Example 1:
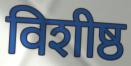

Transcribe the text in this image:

विशीष्ठ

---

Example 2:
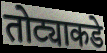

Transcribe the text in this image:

तोट्याकडे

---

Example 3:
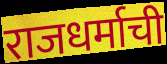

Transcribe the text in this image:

राजधर्माची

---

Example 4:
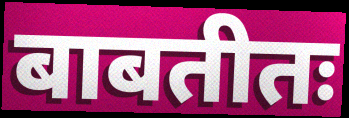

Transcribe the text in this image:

बाबतीतः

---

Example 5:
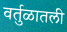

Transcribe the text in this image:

वर्तुळातली